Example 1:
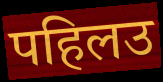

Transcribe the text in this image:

पहिलउ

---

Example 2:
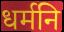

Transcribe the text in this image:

धर्मनि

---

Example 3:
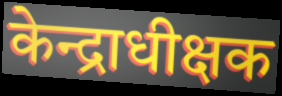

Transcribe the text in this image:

केन्द्राधीक्षक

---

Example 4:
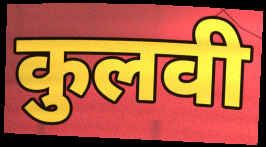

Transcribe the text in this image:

कुलवी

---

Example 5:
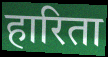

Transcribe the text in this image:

हारिता